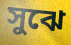
সুঝে